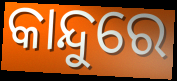
କାନ୍ଦୁରେ